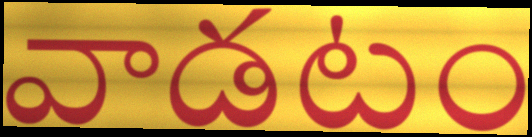
వాడటం